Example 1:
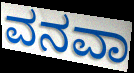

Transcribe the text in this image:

ವನವಾ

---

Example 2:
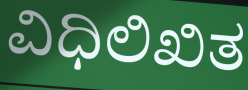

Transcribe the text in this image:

ವಿಧಿಲಿಖಿತ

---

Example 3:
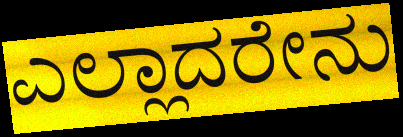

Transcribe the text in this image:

ಎಲ್ಲಾದರೇನು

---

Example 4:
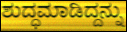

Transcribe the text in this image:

ಶುದ್ಧಮಾಡಿದ್ದನ್ನು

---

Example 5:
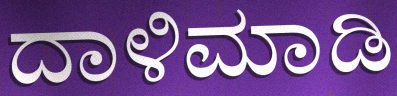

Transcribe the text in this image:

ದಾಳಿಮಾಡಿ